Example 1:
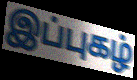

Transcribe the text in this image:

இப்புகழ்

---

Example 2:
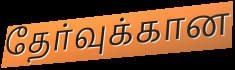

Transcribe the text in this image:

தேர்வுக்கான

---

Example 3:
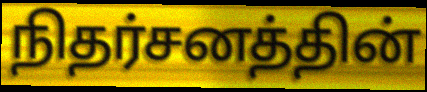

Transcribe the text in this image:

நிதர்சனத்தின்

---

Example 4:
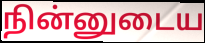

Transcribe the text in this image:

நின்னுடைய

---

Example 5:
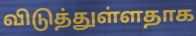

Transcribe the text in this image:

விடுத்துள்ளதாக